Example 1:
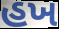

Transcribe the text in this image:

હખ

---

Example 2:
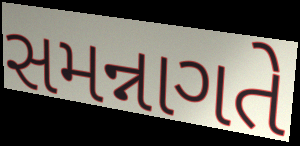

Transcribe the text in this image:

સમન્નાગતે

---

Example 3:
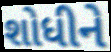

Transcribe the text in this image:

શોધીને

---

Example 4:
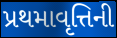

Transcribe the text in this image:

પ્રથમાવૃત્તિની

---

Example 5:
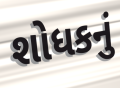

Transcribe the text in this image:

શોધકનું